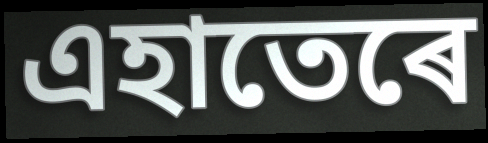
এহাতেৰে